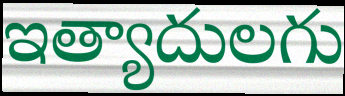
ఇత్యాదులగు